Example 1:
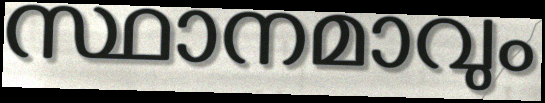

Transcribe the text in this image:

സ്ഥാനമാവും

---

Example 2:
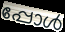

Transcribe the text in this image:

പ്പോൾ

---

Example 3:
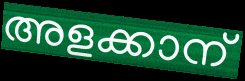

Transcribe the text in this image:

അളക്കാന്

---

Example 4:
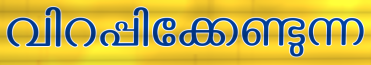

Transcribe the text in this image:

വിറപ്പിക്കേണ്ടുന്ന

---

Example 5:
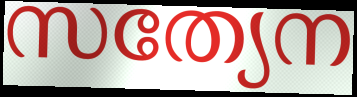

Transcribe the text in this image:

സത്യേന